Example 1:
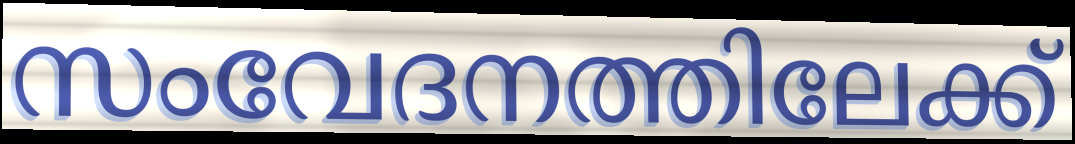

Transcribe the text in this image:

സംവേദനത്തിലേക്ക്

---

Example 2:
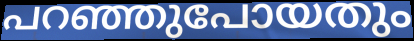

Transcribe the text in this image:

പറഞ്ഞുപോയതും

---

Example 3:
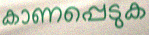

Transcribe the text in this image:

കാണപ്പെടുക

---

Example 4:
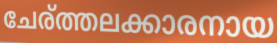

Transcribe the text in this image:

ചേര്ത്തലക്കാരനായ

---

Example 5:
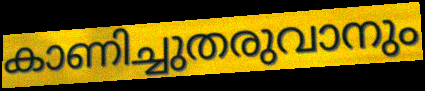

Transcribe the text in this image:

കാണിച്ചുതരുവാനും